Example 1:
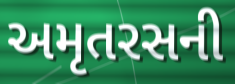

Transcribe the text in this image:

અમૃતરસની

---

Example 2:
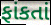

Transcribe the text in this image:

ફાંકતાં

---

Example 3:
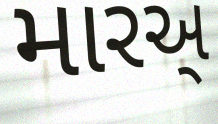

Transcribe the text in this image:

મારઅ્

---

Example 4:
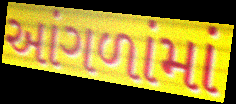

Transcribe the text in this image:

આંગળાંમાં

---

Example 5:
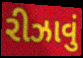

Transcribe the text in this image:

રીઝાવું